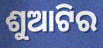
ଶୁଆଟିର